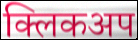
क्लिकअप